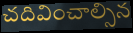
చదివించాల్సిన